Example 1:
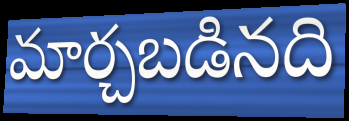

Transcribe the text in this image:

మార్చబడినది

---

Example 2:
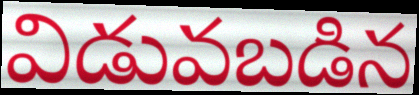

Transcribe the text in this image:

విడువబడిన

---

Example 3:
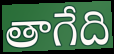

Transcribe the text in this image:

తాగేది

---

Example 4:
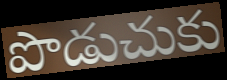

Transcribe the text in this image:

పొడుచుకు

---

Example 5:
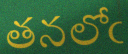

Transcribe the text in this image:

తనలోఁ